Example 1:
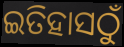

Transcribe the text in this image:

ଇତିହାସଠୁଁ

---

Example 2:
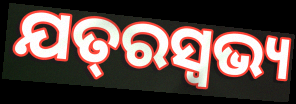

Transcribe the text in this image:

ଯତ୍‌ରସ୍ଵଭ୍ୟ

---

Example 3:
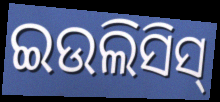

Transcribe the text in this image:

ଇଉଲିସିସ୍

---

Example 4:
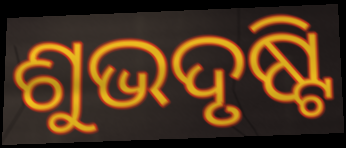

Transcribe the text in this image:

ଶୁଭଦୃଷ୍ଟି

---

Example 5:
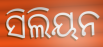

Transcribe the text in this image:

ସିଲିୟନ